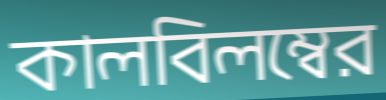
কালবিলম্বের